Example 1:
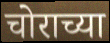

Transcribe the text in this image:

चोराच्या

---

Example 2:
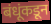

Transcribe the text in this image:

बंधूंकडून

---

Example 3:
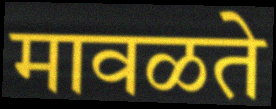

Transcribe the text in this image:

मावळते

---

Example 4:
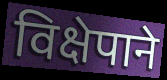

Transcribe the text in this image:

विक्षेपाने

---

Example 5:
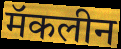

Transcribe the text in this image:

मॅकलीन